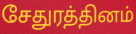
சேதுரத்தினம்